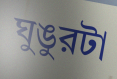
ঘুঙুরটা